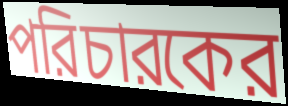
পরিচারকের